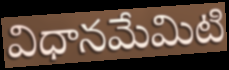
విధానమేమిటి